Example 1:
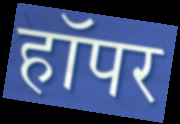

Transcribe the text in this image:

हॉपर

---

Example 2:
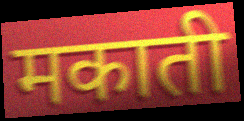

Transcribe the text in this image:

मकाती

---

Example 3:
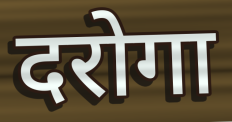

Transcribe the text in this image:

दरोगा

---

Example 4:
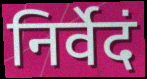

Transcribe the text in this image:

निर्वेदं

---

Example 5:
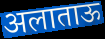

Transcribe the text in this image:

अलाताऊ